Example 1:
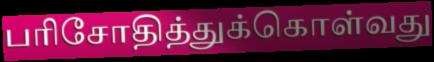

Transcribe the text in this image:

பரிசோதித்துக்கொள்வது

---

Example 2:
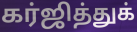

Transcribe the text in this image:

கர்ஜித்துக்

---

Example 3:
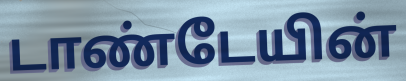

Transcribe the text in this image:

டாண்டேயின்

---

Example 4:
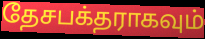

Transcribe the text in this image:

தேசபக்தராகவும்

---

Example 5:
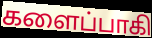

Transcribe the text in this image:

களைப்பாகி